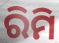
ରିମି